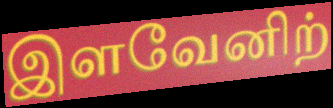
இளவேனிற்